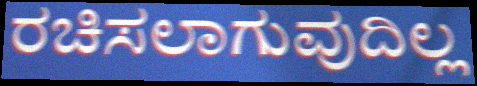
ರಚಿಸಲಾಗುವುದಿಲ್ಲ